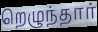
றெழுந்தார்